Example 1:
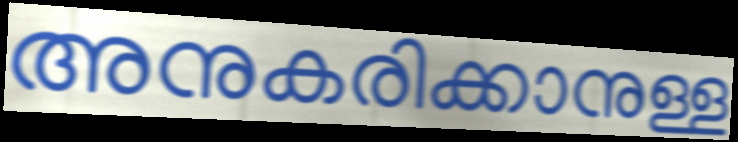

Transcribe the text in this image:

അനുകരിക്കാനുള്ള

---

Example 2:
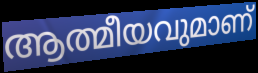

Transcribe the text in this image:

ആത്മീയവുമാണ്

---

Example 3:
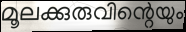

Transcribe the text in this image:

മൂലക്കുരുവിന്റെയും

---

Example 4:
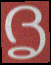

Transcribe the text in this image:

ദൃ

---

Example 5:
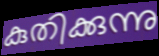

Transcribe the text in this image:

കുതിക്കുന്നു